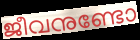
ജീവനുണ്ടോ